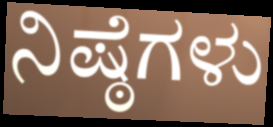
ನಿಷ್ಠೆಗಳು